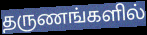
தருணங்களில்